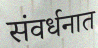
संवर्धनात